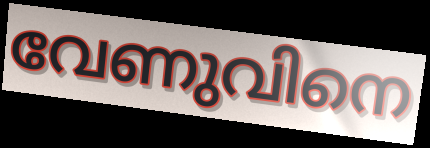
വേണുവിനെ